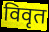
विवृत